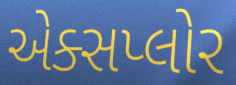
એક્સપ્લોર